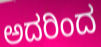
ಅದರಿಂದ